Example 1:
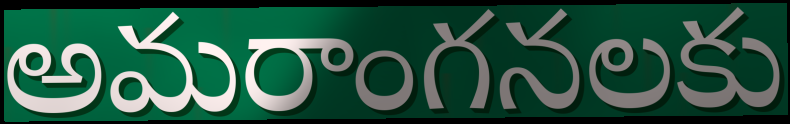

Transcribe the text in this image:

అమరాంగనలకు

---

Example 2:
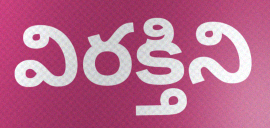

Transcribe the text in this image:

విరక్తిని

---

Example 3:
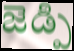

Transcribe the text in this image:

జెడ్పి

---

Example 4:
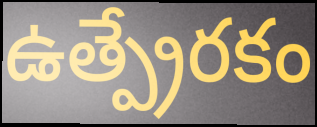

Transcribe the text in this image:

ఉత్ప్రేరకం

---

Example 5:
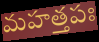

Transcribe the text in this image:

మహత్తపః